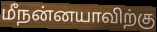
மீநன்னயாவிற்கு